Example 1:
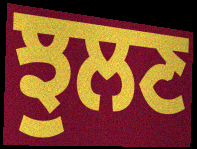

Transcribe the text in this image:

ਝੁਲਣ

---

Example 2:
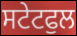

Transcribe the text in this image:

ਸਟੇਟਫੁਲ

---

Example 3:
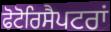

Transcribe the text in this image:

ਫੋਟੋਰਿਸੈਪਟਰਾਂ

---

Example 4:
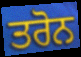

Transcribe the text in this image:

ਤਰੋਨ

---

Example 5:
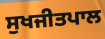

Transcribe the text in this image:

ਸੁਖਜੀਤਪਾਲ